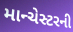
માન્ચેસ્ટરની